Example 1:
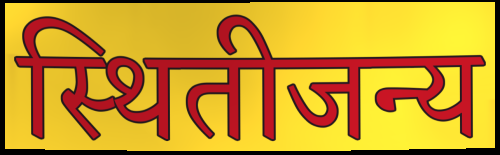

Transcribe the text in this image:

स्थितीजन्य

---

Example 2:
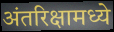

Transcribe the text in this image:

अंतरिक्षामध्ये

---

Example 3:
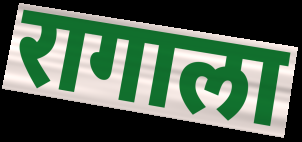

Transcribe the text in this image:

रागाला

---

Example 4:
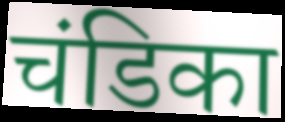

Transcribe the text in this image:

चंडिका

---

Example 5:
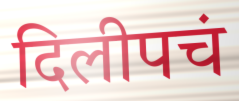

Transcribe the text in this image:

दिलीपचं